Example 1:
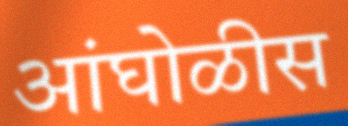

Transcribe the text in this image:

आंघोळीस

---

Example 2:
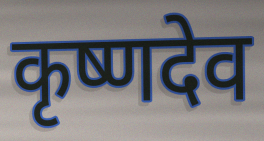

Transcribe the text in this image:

कृष्णदेव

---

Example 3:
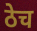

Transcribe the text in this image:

ठेच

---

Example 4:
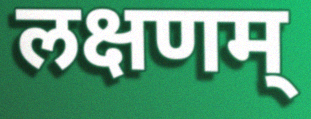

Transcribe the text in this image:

लक्षणम्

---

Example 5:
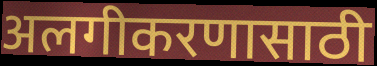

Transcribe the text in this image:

अलगीकरणासाठी